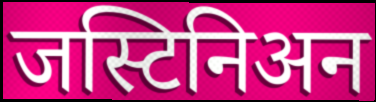
जस्टिनिअन